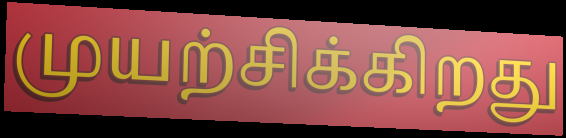
முயற்சிக்கிறது